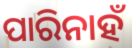
ପାରିନାହଁ